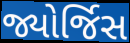
જ્યોર્જિસ